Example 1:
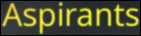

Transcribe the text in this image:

Aspirants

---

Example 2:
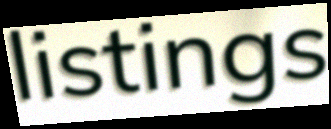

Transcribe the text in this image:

listings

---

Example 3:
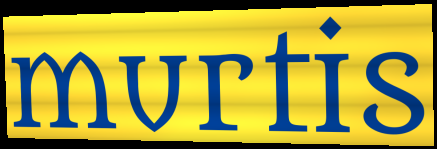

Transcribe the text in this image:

murtis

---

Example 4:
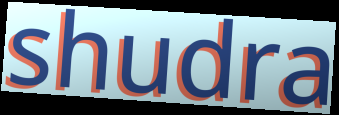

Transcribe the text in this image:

shudra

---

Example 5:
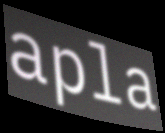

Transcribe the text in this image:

apla